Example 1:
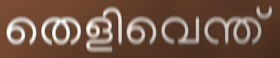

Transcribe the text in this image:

തെളിവെന്ത്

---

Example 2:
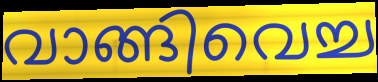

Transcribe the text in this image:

വാങ്ങിവെച്ച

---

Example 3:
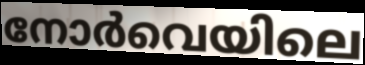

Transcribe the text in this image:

നോർവെയിലെ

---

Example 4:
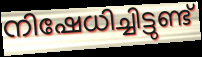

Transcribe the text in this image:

നിഷേധിച്ചിട്ടുണ്ട്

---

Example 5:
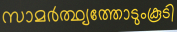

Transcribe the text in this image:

സാമർത്ഥ്യത്തോടുംകൂടി